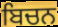
ਬਿਚਨ